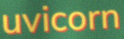
uvicorn